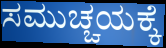
ಸಮುಚ್ಚಯಕ್ಕೆ